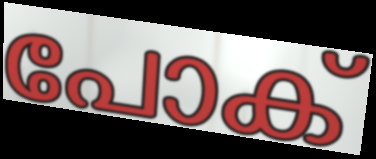
പോക്